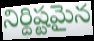
నిర్దిష్టమైన